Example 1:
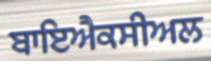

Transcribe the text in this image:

ਬਾਇਐਕਸੀਅਲ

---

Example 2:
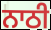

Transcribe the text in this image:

ਨਾਠੀ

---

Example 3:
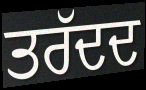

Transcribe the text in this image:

ਤਰੱਦਦ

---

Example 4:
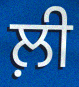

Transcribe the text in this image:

ਲ਼ੀ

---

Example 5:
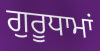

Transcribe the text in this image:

ਗੁਰੂਧਾਮਾਂ